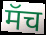
मॅच